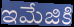
ఇమేజికి